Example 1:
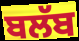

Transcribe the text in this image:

ਬਲੱਬ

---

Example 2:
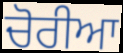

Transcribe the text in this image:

ਚੋਰੀਆ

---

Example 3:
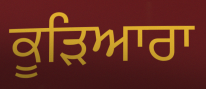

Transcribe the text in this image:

ਕੂੜਿਆਰਾ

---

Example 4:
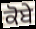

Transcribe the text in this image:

ਕੋਬੇ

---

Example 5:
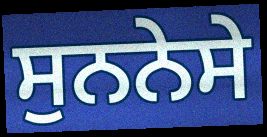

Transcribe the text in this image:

ਸੁਨਨੇਸੇ